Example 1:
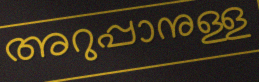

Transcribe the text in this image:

അറുപ്പാനുള്ള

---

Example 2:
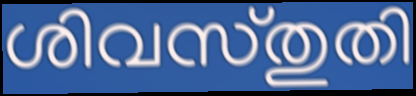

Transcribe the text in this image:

ശിവസ്തുതി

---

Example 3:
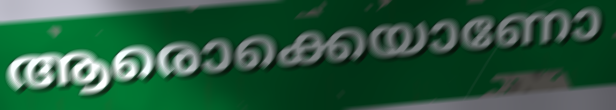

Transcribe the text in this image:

ആരൊക്കെയാണോ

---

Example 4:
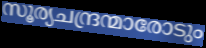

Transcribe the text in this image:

സൂര്യചന്ദ്രന്മാരോടും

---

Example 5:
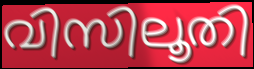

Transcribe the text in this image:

വിസിലൂതി